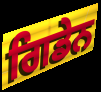
ਗਿਡੇਨ